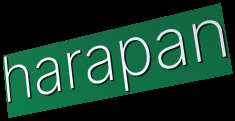
harapan